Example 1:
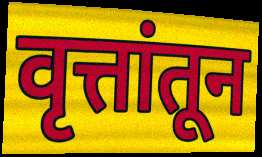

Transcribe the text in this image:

वृत्तांतून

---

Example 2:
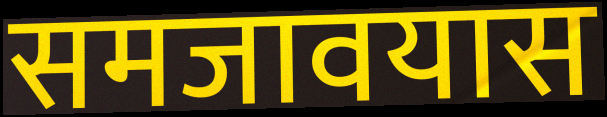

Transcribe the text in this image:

समजावयास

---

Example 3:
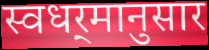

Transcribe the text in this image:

स्वधर्मानुसार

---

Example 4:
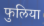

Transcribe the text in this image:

फुलिया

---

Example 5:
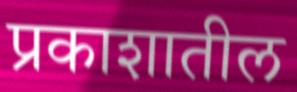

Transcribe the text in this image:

प्रकाशातील